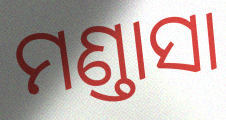
ମଣ୍ଡାସା